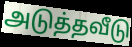
அடுத்தவீடு